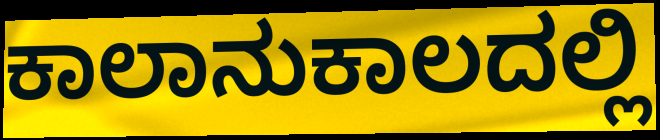
ಕಾಲಾನುಕಾಲದಲ್ಲಿ